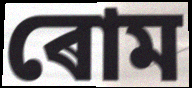
ৰোম